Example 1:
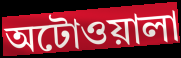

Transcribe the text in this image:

অটোওয়ালা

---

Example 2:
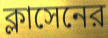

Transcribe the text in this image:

ক্লাসেনের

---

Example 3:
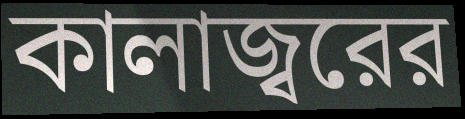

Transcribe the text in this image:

কালাজ্বরের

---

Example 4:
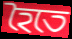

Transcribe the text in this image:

হৈতে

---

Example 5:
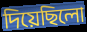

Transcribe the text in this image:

দিয়েছিলো